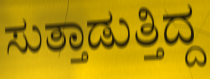
ಸುತ್ತಾಡುತ್ತಿದ್ದ